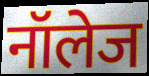
नॉलेज